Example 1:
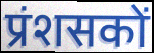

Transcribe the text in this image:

प्रंशसकों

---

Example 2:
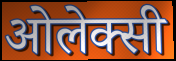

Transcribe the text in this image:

ओलेक्सी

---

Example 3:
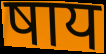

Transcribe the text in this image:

षाय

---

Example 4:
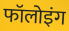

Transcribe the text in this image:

फॉलोइंग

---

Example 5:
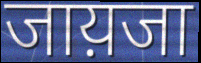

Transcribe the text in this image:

जाय़जा